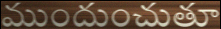
ముందుంచుతూ